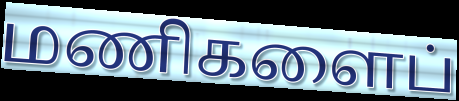
மணிகளைப்